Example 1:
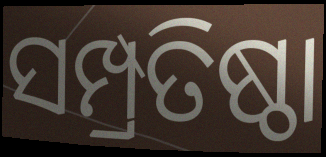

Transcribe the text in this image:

ସମ୍ପ୍ରତିଷ୍ଠା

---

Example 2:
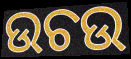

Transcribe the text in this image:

ଉଚଉ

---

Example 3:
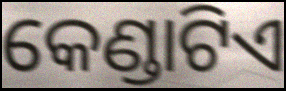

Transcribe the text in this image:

କେଣ୍ଡାଟିଏ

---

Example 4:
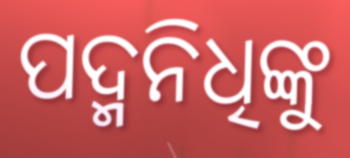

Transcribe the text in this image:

ପଦ୍ମନିଧିଙ୍କୁ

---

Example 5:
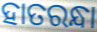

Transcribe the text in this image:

ହାତରନ୍ଧା